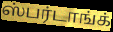
ஸ்பர்டாங்க்